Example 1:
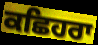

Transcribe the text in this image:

ਕਛਿਹਰਾ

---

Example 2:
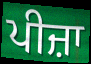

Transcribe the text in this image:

ਪੀਜ਼ਾ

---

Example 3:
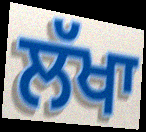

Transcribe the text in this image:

ਲੱਖਾ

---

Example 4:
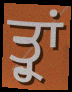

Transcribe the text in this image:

ਤ੍ਰ੍ਹਾਂ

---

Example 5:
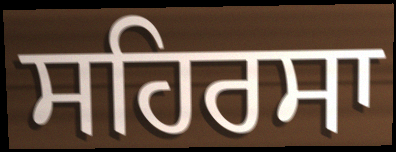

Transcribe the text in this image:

ਸਹਿਰਸਾ